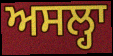
ਅਸਲ੍ਹਾ